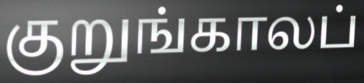
குறுங்காலப்